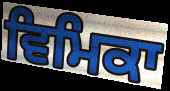
ਵਿਮਿਕਾ